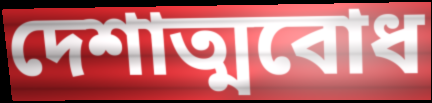
দেশাত্মবোধ